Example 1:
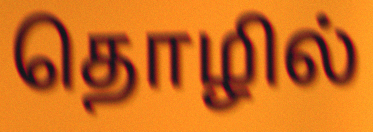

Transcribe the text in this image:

தொழில்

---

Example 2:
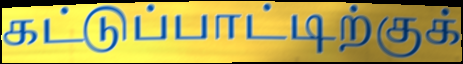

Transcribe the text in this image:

கட்டுப்பாட்டிற்குக்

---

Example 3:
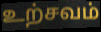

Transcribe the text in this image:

உற்சவம்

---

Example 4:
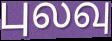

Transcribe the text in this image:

புலவு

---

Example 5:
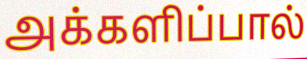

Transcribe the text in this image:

அக்களிப்பால்